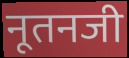
नूतनजी